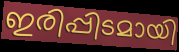
ഇരിപ്പിടമായി